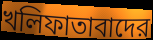
খলিফাতাবাদের